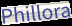
Phillora